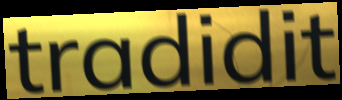
tradidit